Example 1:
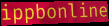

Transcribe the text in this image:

ippbonline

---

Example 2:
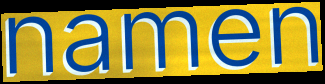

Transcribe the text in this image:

namen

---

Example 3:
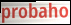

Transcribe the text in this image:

probaho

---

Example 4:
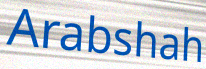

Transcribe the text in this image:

Arabshah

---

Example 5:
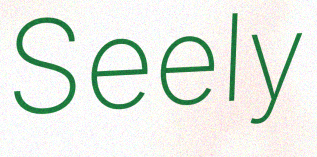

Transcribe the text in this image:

Seely